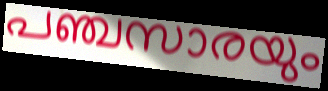
പഞ്ചസാരയും